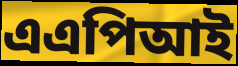
এএপিআই